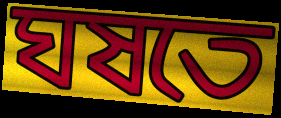
ঘষতে